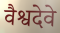
वैश्वदेवे